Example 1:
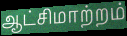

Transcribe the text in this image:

ஆட்சிமாற்றம்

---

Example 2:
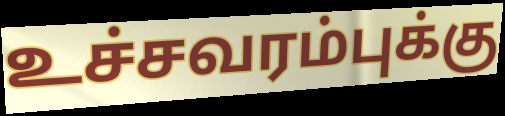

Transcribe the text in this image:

உச்சவரம்புக்கு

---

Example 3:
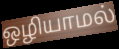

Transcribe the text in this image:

ஒழியாமல்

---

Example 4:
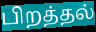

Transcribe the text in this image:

பிறத்தல்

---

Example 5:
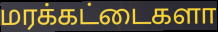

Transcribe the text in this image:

மரக்கட்டைகளா